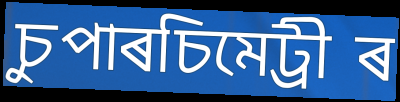
চুপাৰচিমেট্ৰীৰ